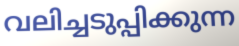
വലിച്ചടുപ്പിക്കുന്ന